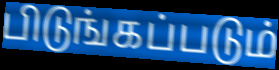
பிடுங்கப்படும்